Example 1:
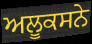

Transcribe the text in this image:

ਅਲੂਕਸਨੇ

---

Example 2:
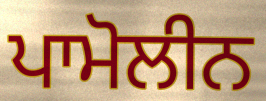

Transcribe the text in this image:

ਪਾਮੋਲੀਨ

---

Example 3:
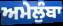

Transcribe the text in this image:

ਅਮੇਲੁੰਬਾ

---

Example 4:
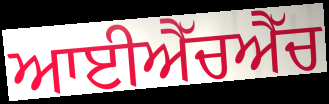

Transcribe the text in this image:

ਆਈਐੱਚਐੱਚ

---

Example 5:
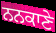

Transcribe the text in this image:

ਨਨਕਾਣੇ